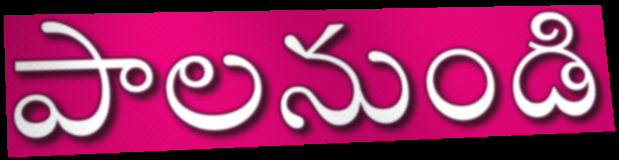
పాలనుండి